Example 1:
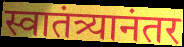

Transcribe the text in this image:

स्वातंत्र्यानंतर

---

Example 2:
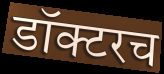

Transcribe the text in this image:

डॉक्टरच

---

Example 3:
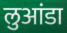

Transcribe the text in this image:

लुआंडा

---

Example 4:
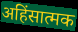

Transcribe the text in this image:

अहिंसात्मक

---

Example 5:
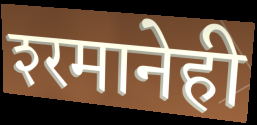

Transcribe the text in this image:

श्रमानेही